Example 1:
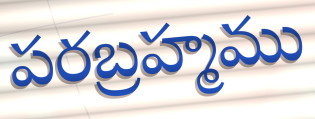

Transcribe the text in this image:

పరబ్రహ్మము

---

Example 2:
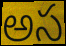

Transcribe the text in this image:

అస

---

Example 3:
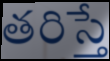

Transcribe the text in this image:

తరిస్తే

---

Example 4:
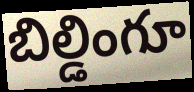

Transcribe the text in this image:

బిల్డింగూ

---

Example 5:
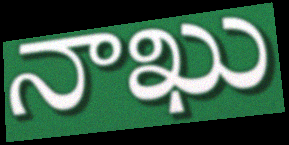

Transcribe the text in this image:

నాఖు